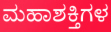
ಮಹಾಶಕ್ತಿಗಳ